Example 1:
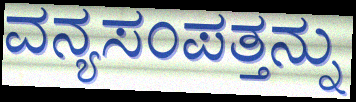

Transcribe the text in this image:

ವನ್ಯಸಂಪತ್ತನ್ನು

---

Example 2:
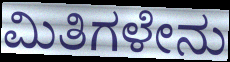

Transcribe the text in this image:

ಮಿತಿಗಳೇನು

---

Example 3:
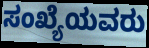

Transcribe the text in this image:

ಸಂಖ್ಯೆಯವರು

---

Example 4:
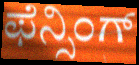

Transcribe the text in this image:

ಫೆನ್ಸಿಂಗ್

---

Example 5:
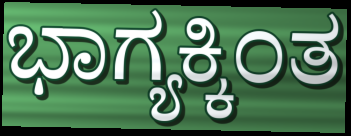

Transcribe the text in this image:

ಭಾಗ್ಯಕ್ಕಿಂತ